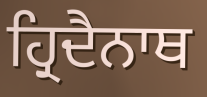
ਹ੍ਰਿਦੈਨਾਥ